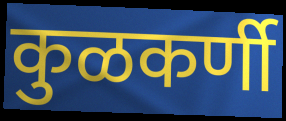
कुळकर्णी